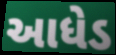
આધેડ